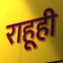
राहूही